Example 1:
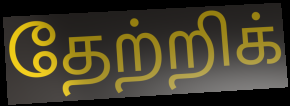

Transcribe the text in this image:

தேற்றிக்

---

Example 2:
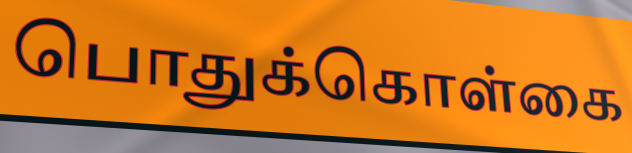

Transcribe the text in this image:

பொதுக்கொள்கை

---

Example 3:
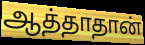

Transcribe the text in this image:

ஆத்தாதான்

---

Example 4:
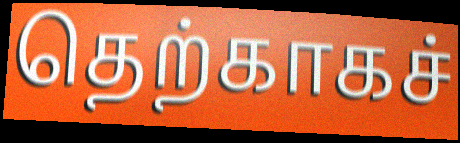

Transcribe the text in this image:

தெற்காகச்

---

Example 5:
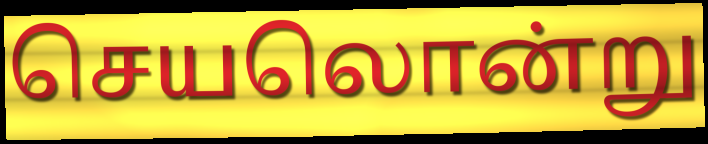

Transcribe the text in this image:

செயலொன்று